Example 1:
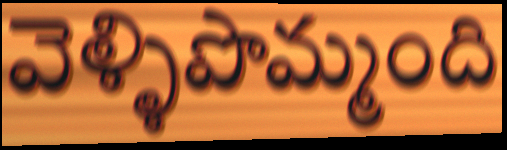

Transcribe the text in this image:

వెళ్ళిపొమ్మంది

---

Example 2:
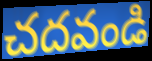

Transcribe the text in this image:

చదవండి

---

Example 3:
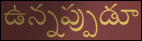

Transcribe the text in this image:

ఉన్నప్పుడూ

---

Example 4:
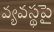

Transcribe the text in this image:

వ్యవస్థపై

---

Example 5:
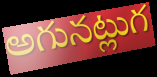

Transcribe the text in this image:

అగునట్లుగ